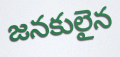
జనకులైన